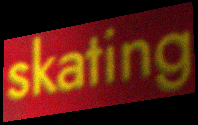
skating